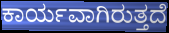
ಕಾರ್ಯವಾಗಿರುತ್ತದೆ